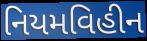
નિયમવિહીન